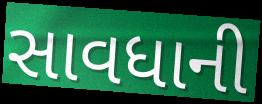
સાવધાની